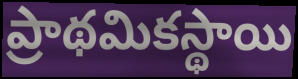
ప్రాథమికస్థాయి